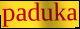
paduka